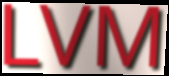
LVM